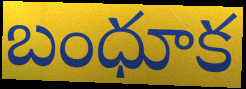
బంధూక